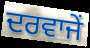
ਦਰਵਾਜੇਂ